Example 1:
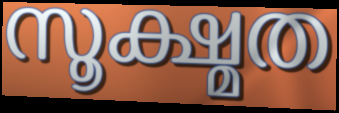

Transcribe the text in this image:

സൂക്ഷ്മത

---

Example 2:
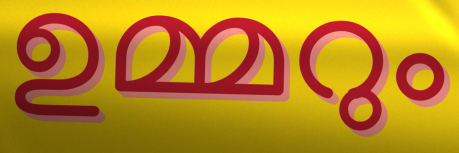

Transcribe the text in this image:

ഉമ്മറും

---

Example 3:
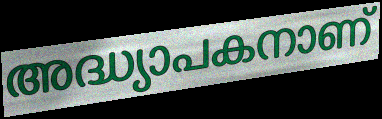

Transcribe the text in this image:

അദ്ധ്യാപകനാണ്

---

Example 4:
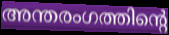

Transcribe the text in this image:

അന്തരംഗത്തിന്റെ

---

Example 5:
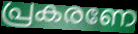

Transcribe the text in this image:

പ്രകരണേ